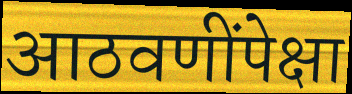
आठवणींपेक्षा